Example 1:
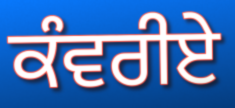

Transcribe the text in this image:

ਕੰਵਰੀਏ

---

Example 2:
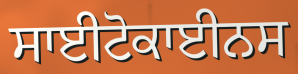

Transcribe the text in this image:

ਸਾਈਟੋਕਾਈਨਸ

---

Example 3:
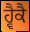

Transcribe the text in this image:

ਹ੍ਵੈਕੈ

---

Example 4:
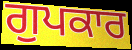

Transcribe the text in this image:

ਗੁਪਕਾਰ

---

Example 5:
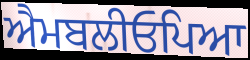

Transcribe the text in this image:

ਐਮਬਲੀਓਪਿਆ